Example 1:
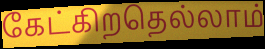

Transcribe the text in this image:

கேட்கிறதெல்லாம்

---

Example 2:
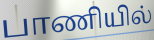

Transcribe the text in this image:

பாணியில்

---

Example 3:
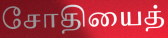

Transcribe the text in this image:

சோதியைத்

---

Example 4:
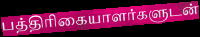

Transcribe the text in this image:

பத்திரிகையாளர்களுடன்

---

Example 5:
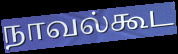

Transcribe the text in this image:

நாவல்கூட